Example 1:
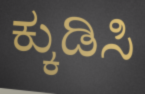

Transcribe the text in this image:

ಕ್ಕುಡಿಸಿ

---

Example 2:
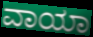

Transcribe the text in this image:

ವಾಯಾ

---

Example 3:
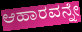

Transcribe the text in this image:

ಆಹಾರವನ್ನೇ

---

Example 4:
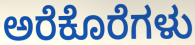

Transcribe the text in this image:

ಅರೆಕೊರೆಗಳು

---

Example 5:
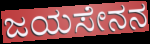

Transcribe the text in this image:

ಜಯಸೇನನ